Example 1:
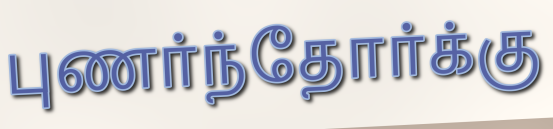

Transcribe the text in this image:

புணர்ந்தோர்க்கு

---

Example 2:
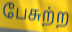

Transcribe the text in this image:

பேசுற்ற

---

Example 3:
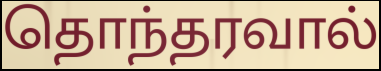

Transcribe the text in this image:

தொந்தரவால்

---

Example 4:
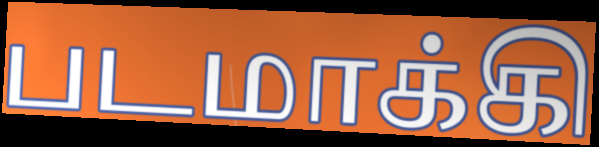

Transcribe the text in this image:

படமாக்கி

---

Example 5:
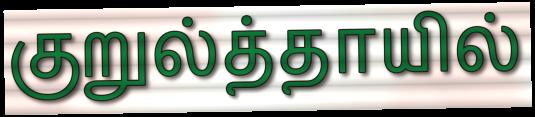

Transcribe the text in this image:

குறுல்த்தாயில்